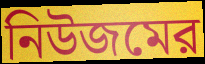
নিউজমের